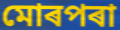
মোৰপৰা